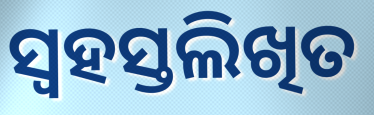
ସ୍ୱହସ୍ତଲିଖିତ